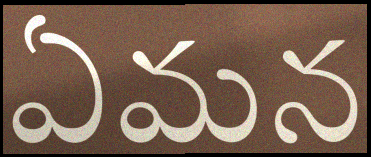
ఏమన